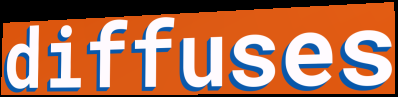
diffuses